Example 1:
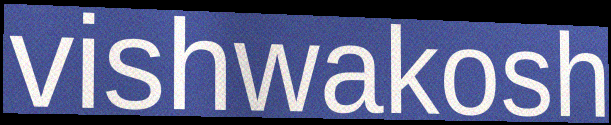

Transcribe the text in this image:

vishwakosh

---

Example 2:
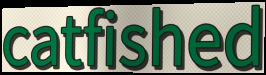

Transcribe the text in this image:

catfished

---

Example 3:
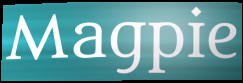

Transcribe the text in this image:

Magpie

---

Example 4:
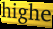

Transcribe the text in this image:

highe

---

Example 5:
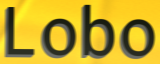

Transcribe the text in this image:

Lobo